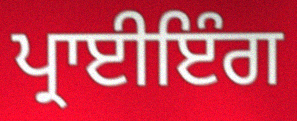
ਪ੍ਰਾਈਇੰਗ